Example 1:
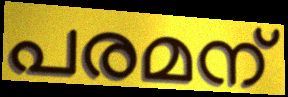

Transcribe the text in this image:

പരമന്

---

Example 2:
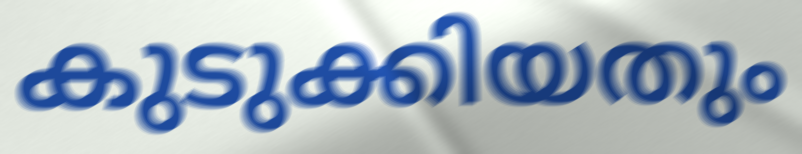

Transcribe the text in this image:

കുടുക്കിയതും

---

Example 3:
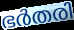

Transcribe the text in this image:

ഭർതരി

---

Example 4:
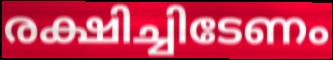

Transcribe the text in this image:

രക്ഷിച്ചിടേണം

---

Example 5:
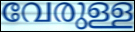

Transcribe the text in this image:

വേരുള്ള